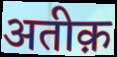
अतीक़